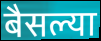
बैसल्या